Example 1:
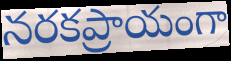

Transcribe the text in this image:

నరకప్రాయంగా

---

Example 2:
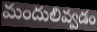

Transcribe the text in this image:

మందులివ్వడం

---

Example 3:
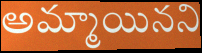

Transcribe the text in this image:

అమ్మాయినని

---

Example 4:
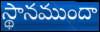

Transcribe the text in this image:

స్థానముందా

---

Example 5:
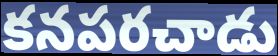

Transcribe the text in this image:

కనపరచాడు